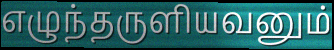
எழுந்தருளியவனும்